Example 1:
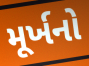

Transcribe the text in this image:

મૂર્ખનો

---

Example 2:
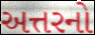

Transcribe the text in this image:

અત્તરનો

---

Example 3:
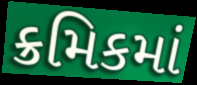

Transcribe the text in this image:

ક્રમિકમાં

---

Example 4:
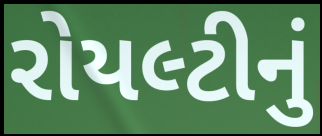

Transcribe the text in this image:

રોયલ્ટીનું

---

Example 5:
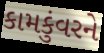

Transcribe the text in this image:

કામકુંવરને